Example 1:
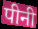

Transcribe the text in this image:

पीनी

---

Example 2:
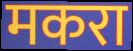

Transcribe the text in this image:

मकरा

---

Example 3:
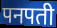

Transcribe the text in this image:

पनपती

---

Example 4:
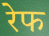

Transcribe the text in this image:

रेफ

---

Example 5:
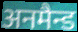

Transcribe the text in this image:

अनमैन्ड